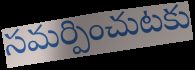
సమర్పించుటకు